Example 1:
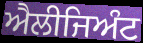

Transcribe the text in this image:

ਐਲੀਜਿਅੰਟ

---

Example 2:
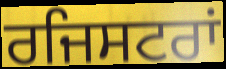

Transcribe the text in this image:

ਰਜਿਸਟਰਾਂ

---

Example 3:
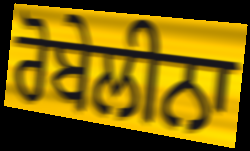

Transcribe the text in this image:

ਰੋਬੇਲੀਨਾ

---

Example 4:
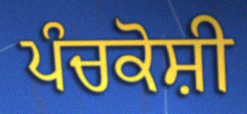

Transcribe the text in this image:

ਪੰਚਕੋਸ਼ੀ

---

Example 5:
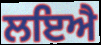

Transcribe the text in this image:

ਲਇਐ